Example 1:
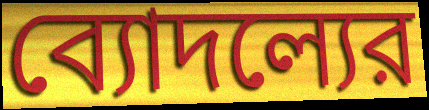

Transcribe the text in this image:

ব্যোদল্যের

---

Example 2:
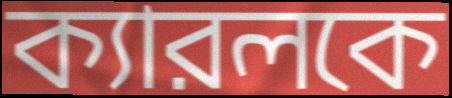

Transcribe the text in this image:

ক্যারলকে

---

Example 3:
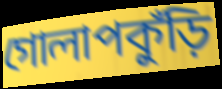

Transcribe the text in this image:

গোলাপকুঁড়ি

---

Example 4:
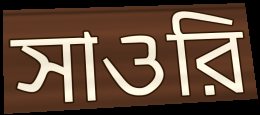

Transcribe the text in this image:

সাওরি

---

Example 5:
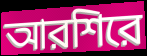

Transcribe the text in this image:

আরশিরে